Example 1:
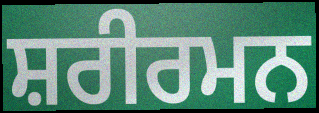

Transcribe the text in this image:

ਸ਼ਰੀਰਮਨ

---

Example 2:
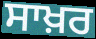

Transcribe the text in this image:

ਸਾਖ਼ਰ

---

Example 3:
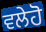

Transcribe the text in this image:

ਵਲੇਹੋ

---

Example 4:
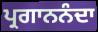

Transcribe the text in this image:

ਪ੍ਰਗਾਨਨੰਦਾ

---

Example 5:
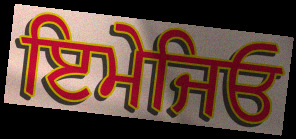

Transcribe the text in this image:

ਇਮੇਜਿਓ